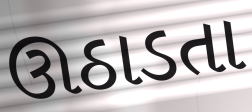
ઊઠાડતા